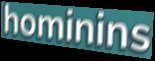
hominins